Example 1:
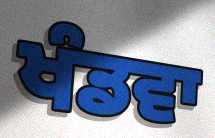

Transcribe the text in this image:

ਖੰਡਵਾ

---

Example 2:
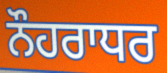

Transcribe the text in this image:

ਨੌਹਰਾਧਰ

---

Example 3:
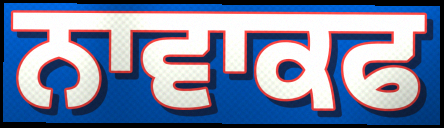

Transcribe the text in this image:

ਨਾਵਾਕਫ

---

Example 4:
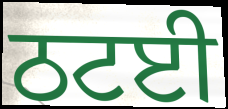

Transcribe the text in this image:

ਠਟਈ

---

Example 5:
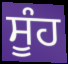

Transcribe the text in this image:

ਸੂੰਹ